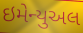
ઇમેન્યુઅલ